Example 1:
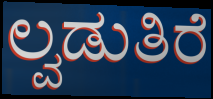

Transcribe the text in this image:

ಲ್ವಡುತಿರೆ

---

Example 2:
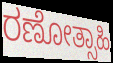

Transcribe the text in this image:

ರಣೋತ್ಸಾಹಿ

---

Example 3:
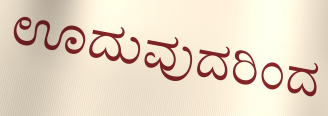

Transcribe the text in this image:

ಊದುವುದರಿಂದ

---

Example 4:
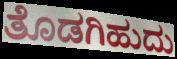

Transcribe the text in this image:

ತೊಡಗಿಹುದು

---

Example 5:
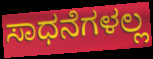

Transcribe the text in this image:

ಸಾಧನೆಗಳಲ್ಲ